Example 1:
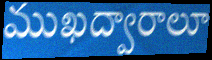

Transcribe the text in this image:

ముఖద్వారాలూ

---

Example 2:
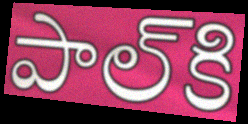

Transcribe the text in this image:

పాల్‌కి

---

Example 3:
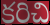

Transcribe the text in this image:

కరిచి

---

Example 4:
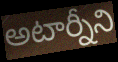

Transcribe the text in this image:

అటార్నీని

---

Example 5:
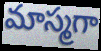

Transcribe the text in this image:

మాస్మగా